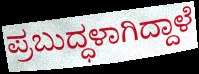
ಪ್ರಬುದ್ಧಳಾಗಿದ್ದಾಳೆ